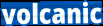
volcanic